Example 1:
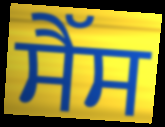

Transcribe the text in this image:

ਸੈੱਸ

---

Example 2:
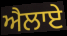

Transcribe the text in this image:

ਐਲਾਏ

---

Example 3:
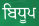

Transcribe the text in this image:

ਬਿਧੂਪ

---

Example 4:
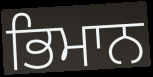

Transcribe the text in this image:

ਭਿਮਾਨ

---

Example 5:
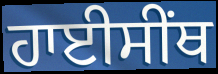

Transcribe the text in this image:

ਹਾਈਸੀੰਥ